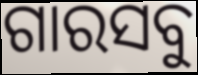
ଗାରସବୁ